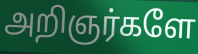
அறிஞர்களே